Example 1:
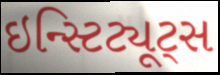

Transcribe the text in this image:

ઇન્સ્ટિટ્યૂટ્સ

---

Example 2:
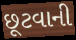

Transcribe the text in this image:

છૂટવાની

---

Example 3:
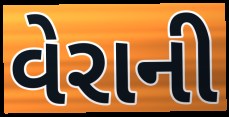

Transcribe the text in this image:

વેરાની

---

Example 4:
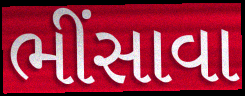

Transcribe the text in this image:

ભીંસાવા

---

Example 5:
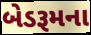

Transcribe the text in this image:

બેડરૂમના